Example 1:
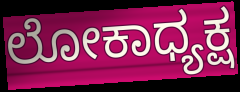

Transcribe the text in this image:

ಲೋಕಾಧ್ಯಕ್ಷ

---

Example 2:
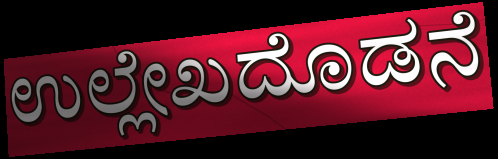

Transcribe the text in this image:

ಉಲ್ಲೇಖದೊಡನೆ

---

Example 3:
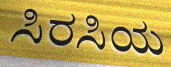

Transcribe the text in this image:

ಸಿರಸಿಯ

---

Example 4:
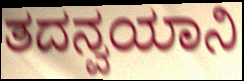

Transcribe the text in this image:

ತದನ್ವಯಾನಿ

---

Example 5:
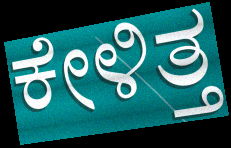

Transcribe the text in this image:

ಕೇಳಿತ್ತ